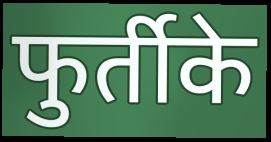
फुर्तीके